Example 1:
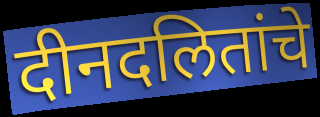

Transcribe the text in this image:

दीनदलितांचे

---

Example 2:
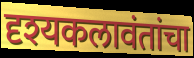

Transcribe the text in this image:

दृश्यकलावंतांचा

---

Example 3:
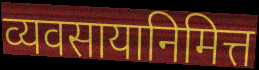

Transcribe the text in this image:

व्यवसायानिमित्त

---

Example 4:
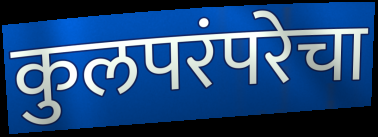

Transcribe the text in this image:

कुलपरंपरेचा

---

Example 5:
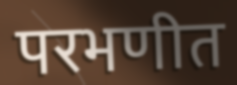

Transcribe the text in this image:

परभणीत